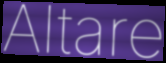
Altare